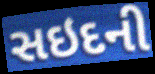
સઇદની